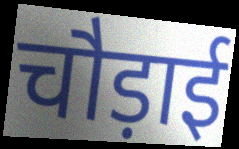
चौड़ाई